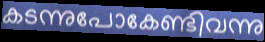
കടന്നുപോകേണ്ടിവന്നു